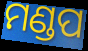
ମଣ୍ଡପ